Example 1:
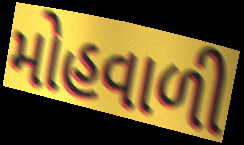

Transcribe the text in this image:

મોહવાળી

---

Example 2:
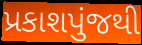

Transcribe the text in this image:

પ્રકાશપુંજથી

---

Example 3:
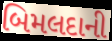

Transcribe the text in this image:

બિમલદાની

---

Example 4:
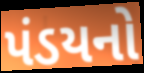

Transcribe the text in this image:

પંડયનો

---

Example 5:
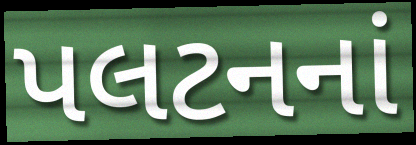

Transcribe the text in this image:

પલટનનાં